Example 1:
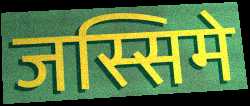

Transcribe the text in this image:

जस्सिमे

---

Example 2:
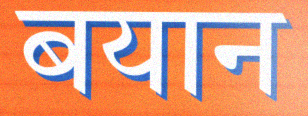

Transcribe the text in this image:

बयान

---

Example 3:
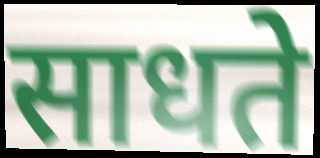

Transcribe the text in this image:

साधते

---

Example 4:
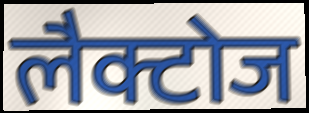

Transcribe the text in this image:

लैक्टोज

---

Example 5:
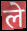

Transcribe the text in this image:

ले